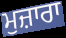
ਮੁਜ਼ਾਰਾ